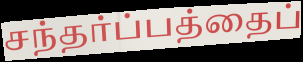
சந்தர்ப்பத்தைப்